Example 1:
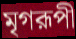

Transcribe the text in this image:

মৃগরূপী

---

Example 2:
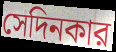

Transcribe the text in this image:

সেদিনকার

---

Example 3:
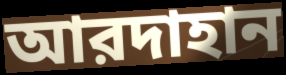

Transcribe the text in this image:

আরদাহান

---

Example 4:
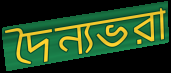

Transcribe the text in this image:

দৈন্যভরা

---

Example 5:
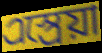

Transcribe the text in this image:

এস্ত্রেয়া